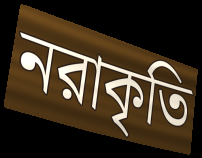
নরাকৃতি